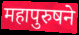
महापुरुषने